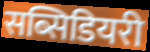
सब्सिडियरी